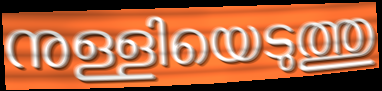
നുള്ളിയെടുത്തു